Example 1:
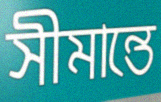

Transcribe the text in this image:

সীমান্তে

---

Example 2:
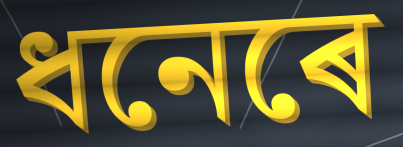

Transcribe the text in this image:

ধনেৰে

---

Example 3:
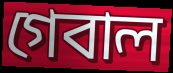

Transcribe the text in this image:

গেবাল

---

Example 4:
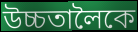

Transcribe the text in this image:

উচ্চতালৈকে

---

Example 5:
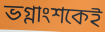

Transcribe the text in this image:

ভগ্নাংশকেই